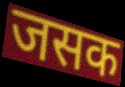
जसक